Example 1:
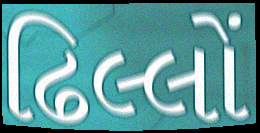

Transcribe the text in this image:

ઢિલ્લોં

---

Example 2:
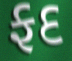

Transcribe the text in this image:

ફદ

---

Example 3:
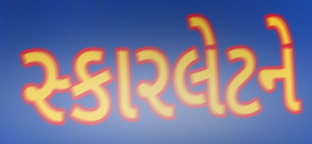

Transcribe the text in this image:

સ્કારલેટને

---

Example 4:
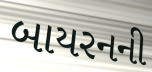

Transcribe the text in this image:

બાયરનની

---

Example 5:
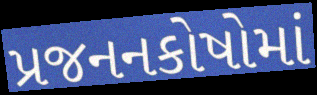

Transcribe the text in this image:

પ્રજનનકોષોમાં